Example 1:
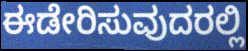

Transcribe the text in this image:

ಈಡೇರಿಸುವುದರಲ್ಲಿ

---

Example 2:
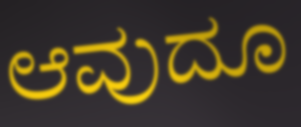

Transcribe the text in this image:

ಆವುದೂ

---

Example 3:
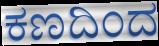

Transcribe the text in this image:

ಕಣದಿಂದ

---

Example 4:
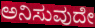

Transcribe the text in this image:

ಅನಿಸುವುದೇ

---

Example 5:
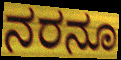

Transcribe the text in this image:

ನರನೂ